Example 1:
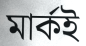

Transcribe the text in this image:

মার্কই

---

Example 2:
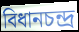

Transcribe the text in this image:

বিধানচন্দ্র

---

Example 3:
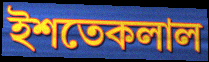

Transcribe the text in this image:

ইশতেকলাল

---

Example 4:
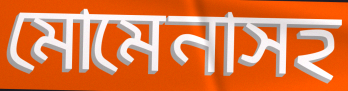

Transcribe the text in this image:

মোমেনাসহ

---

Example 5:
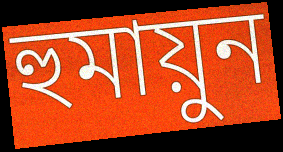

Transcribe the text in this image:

হুমায়ুন